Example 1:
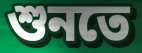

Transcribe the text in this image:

শুনতে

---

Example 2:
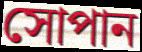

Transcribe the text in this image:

সোপান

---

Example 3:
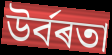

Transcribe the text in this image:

উৰ্বৰতা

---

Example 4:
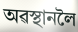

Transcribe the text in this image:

অৱস্থানলৈ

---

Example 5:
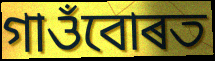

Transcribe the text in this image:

গাওঁবোৰত